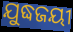
ଯୁଦ୍ଧଜୟୀ